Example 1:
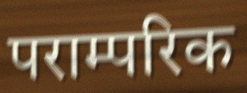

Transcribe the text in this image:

पराम्परिक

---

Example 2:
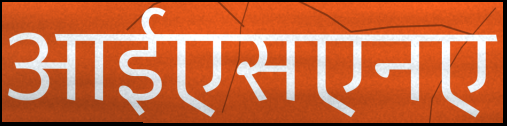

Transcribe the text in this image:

आईएसएनए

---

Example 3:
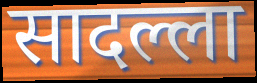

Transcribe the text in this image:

सादल्ला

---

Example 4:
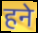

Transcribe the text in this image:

हने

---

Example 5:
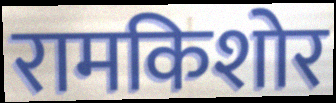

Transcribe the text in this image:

रामकिशोर